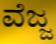
ವೆಜ್ಜ